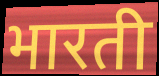
भारती